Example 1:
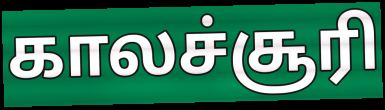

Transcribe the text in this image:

காலச்சூரி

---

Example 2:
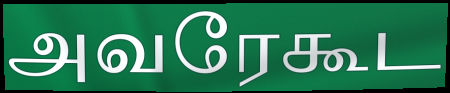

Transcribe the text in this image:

அவரேகூட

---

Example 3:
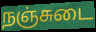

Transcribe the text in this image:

நஞ்சுடை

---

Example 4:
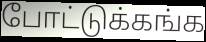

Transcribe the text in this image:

போட்டுக்கங்க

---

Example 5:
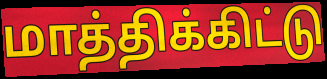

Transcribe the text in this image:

மாத்திக்கிட்டு